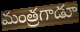
మంత్రగాడూ